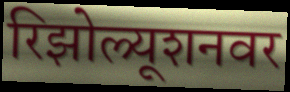
रिझोल्यूशनवर